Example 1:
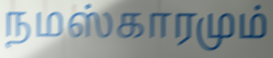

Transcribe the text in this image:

நமஸ்காரமும்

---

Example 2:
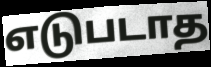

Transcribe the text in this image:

எடுபடாத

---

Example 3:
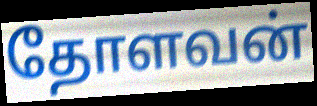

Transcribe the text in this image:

தோளவன்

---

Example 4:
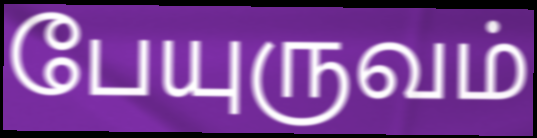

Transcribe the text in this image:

பேயுருவம்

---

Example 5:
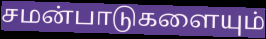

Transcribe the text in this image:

சமன்பாடுகளையும்